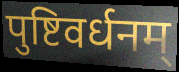
पुष्टिवर्धनम्